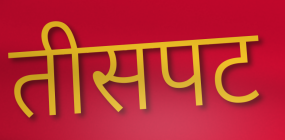
तीसपट